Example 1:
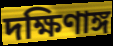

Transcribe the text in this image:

দক্ষিণাঙ্গ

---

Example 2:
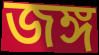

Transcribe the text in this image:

জঙ্গ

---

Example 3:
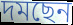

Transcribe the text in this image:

দমছেন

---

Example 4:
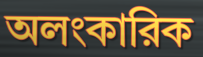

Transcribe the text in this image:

অলংকারিক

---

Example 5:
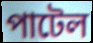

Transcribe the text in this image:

পাটেল